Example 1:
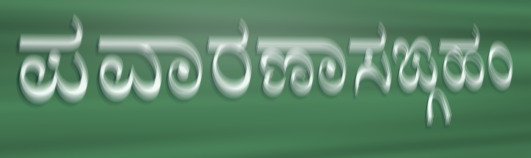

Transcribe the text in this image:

ಪವಾರಣಾಸಙ್ಗಹಂ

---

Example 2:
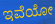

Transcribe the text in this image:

ಇವೆಯೋ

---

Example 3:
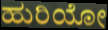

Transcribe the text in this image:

ಹುರಿಯೋ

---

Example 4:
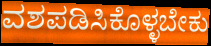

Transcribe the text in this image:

ವಶಪಡಿಸಿಕೊಳ್ಳಬೇಕು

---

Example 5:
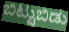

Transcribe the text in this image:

ಬಿಟ್ಟುಬಿಡು